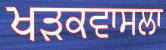
ਖੜਕਵਾਸਲਾ